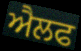
ਐਲਫ